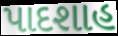
પાદશાહ